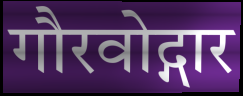
गौरवोद्गार